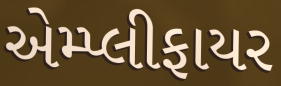
એમ્પ્લીફાયર